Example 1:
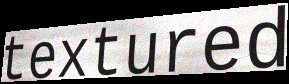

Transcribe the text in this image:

textured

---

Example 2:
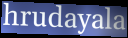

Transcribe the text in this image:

hrudayala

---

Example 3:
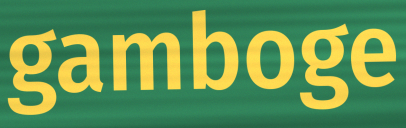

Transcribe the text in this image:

gamboge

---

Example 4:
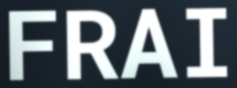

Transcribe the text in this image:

FRAI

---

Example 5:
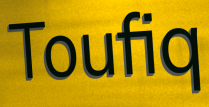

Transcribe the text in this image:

Toufiq